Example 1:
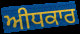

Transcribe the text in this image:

ਅੀਧਕਾਰ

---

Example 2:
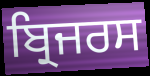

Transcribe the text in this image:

ਬ੍ਰਿਜਰਸ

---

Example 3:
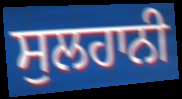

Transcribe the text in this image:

ਸੁਲਹਾਨੀ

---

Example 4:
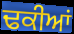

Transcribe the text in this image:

ਢਕੀਆਂ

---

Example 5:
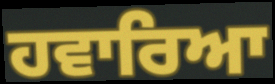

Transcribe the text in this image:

ਹਵਾਰਿਆ